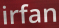
irfan